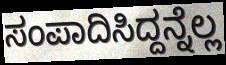
ಸಂಪಾದಿಸಿದ್ದನ್ನೆಲ್ಲ